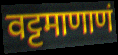
वट्टमाणाणं